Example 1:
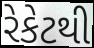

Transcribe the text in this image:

રેકેટથી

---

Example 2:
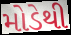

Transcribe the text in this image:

મોડેથી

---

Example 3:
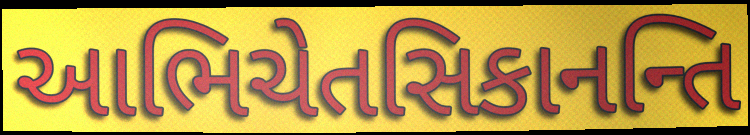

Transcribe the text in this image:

આભિચેતસિકાનન્તિ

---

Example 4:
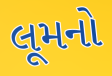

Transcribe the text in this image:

લૂમનો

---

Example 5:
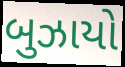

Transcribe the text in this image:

બુઝાયો